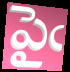
పైఁ